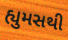
હ્યુમસથી